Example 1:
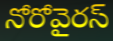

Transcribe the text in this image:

నోరోవైరస్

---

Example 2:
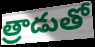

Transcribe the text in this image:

త్రాడుతో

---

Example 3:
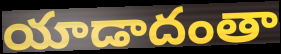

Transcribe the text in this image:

యాడాదంతా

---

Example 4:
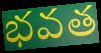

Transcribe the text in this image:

భవత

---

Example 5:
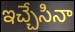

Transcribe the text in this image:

ఇచ్చేసినా